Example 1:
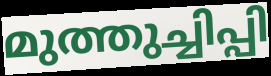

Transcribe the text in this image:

മുത്തുച്ചിപ്പി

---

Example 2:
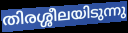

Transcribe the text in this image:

തിരശ്ശീലയിടുന്നു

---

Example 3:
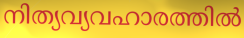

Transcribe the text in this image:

നിത്യവ്യവഹാരത്തിൽ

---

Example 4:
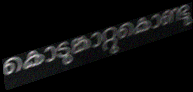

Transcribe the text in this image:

കൊടുങ്കാറ്റുകൊണ്ടു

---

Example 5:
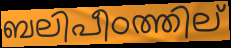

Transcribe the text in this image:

ബലിപീഠത്തില്